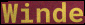
Winde